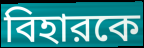
বিহারকে